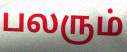
பலரும்